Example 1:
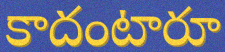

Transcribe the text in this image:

కాదంటారూ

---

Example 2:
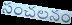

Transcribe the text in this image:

సంచలనం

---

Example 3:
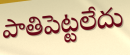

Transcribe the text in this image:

పాతిపెట్టలేదు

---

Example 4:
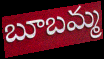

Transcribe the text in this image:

బూబమ్మ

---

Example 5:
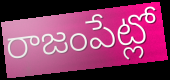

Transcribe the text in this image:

రాజంపేట్లో